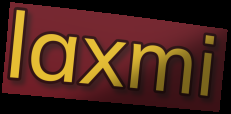
laxmi